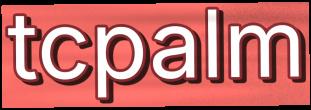
tcpalm